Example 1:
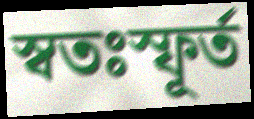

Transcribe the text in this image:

স্বতঃস্ফূর্ত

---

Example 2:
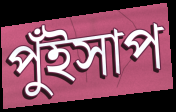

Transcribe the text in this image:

পুঁইসাপ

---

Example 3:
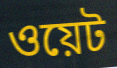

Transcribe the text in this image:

ওয়েট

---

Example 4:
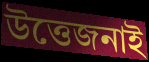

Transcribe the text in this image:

উত্তেজনাই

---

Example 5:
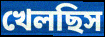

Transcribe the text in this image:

খেলছিস